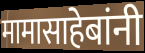
मामासाहेबांनी